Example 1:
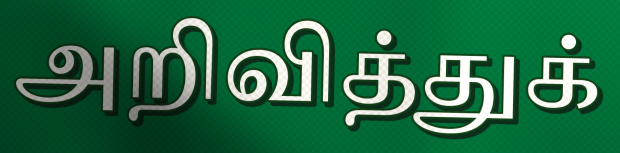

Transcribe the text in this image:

அறிவித்துக்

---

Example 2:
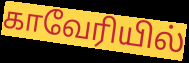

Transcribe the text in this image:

காவேரியில்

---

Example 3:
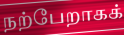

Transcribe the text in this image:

நற்பேறாகக்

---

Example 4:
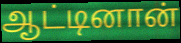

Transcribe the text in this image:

ஆட்டினான்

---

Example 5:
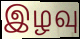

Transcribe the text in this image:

இழவு